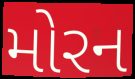
મોરન